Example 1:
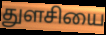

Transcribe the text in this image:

துளசியை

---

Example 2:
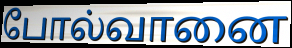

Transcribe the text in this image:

போல்வானை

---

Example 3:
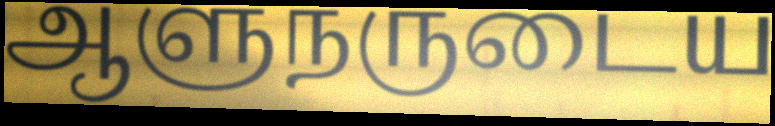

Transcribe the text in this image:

ஆளுநருடைய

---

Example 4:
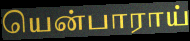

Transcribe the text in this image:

யென்பாராய்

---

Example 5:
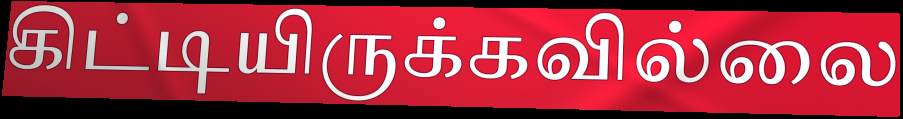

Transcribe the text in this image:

கிட்டியிருக்கவில்லை